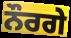
ਨੌਰਗੇ